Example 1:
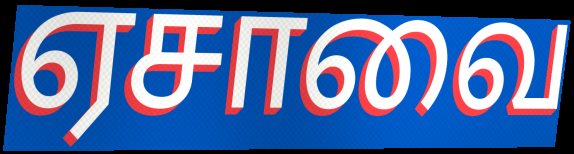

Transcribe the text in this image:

ஏசாவை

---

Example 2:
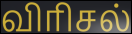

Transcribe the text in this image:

விரிசல்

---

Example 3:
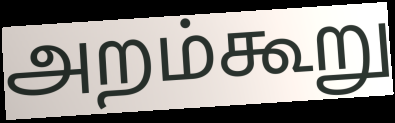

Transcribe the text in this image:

அறம்கூறு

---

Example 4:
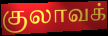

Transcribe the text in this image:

குலாவக்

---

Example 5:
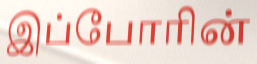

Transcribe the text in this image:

இப்போரின்